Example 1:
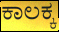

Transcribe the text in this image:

ಕಾಲಕ್ಕ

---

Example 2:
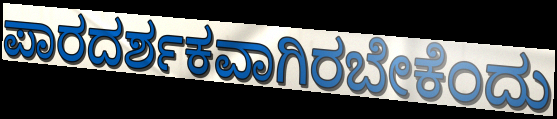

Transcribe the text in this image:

ಪಾರದರ್ಶಕವಾಗಿರಬೇಕೆಂದು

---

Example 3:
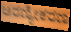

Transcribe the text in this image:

ಅರಣ್ಯೀಕರಣ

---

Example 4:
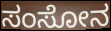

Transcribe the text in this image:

ಸಂಸೋನ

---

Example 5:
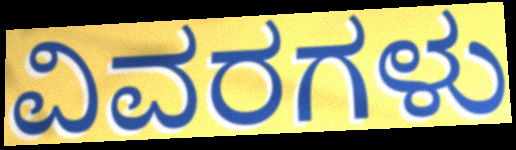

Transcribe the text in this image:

ವಿವರಗಳು